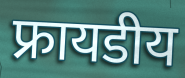
फ्रायडीय